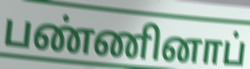
பண்ணினாப்